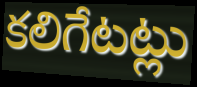
కలిగేటట్లు